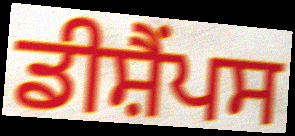
ਡੀਸ਼ੈਂਪਸ